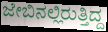
ಜೇಬಿನಲ್ಲಿರುತ್ತಿದ್ದ